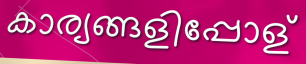
കാര്യങ്ങളിപ്പോള്